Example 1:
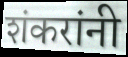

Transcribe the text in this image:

शंकरांनी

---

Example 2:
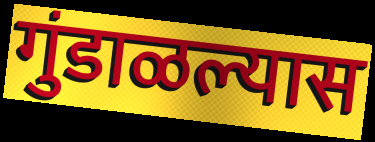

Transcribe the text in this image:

गुंडाळल्यास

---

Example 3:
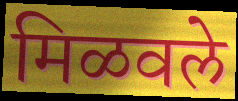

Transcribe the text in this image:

मिळवले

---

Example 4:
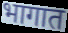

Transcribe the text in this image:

भागात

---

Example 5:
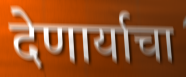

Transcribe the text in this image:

देणार्याचा